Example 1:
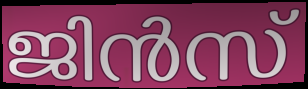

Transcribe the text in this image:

ജിൻസ്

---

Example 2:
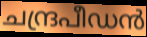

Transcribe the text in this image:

ചന്ദ്രപീഡൻ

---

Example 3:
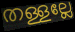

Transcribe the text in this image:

തള്ളല്ലേ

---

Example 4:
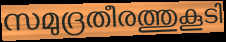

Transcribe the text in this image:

സമുദ്രതീരത്തുകൂടി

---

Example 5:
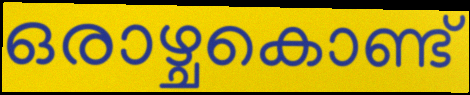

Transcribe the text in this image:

ഒരാഴ്ചകൊണ്ട്